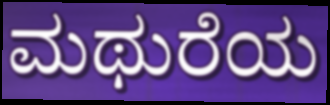
ಮಥುರೆಯ